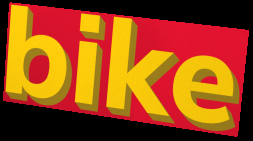
bike